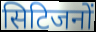
सिटिजनों